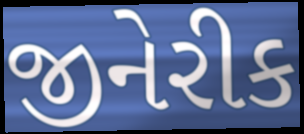
જીનેરીક